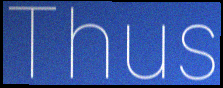
Thus